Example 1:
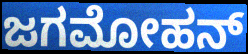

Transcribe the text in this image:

ಜಗಮೋಹನ್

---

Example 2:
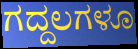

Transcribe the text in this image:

ಗದ್ದಲಗಳೂ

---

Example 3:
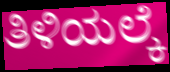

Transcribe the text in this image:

ತಿಳಿಯಲ್ಕೆ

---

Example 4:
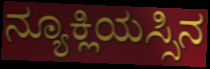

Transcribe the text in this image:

ನ್ಯೂಕ್ಲಿಯಸ್ಸಿನ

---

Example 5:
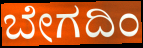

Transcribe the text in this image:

ಬೇಗದಿಂ